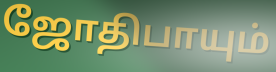
ஜோதிபாயும்